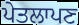
ਪੇਤਲਾਪਣ